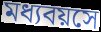
মধ্যবয়সে